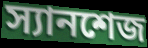
স্যানশেজ